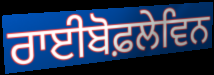
ਰਾਈਬੋਫ਼ਲੇਵਿਨ